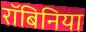
रॉबिनिया